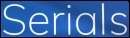
Serials